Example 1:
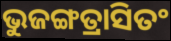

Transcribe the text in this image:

ଭୁଜଙ୍ଗତ୍ରାସିତଂ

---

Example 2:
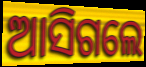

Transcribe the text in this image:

ଆସିଗଲେ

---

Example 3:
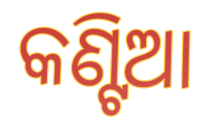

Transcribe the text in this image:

କଣ୍ଟିଆ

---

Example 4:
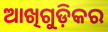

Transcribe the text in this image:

ଆଖିଗୁଡ଼ିକର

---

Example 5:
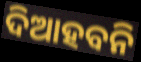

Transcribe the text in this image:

ଦିଆହବନି